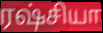
ரஷ்சியா